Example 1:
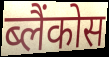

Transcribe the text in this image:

ब्लैंकोस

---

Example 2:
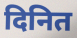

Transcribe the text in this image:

दिनित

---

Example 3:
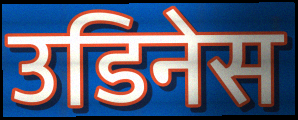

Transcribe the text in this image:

उडिनेस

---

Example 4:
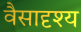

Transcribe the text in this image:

वैसादृश्य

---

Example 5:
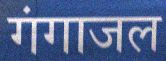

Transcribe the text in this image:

गंगाजल